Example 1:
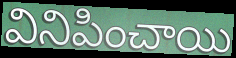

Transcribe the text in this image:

వినిపించాయి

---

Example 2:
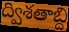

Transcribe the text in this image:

ద్విశతాబ్ది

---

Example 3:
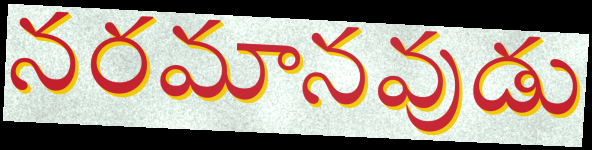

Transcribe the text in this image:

నరమానవుడు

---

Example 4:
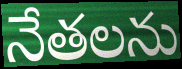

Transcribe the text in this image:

నేతలను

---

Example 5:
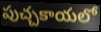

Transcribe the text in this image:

పుచ్చకాయలో